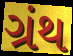
ગ્રંથ